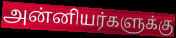
அன்னியர்களுக்கு